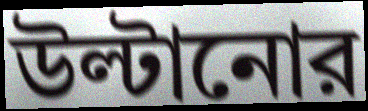
উল্টানোর